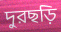
দুরছড়ি